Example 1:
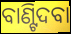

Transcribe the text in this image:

ବାଣ୍ଟିଦବା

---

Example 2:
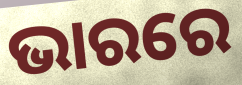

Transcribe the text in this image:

ଭାରରେ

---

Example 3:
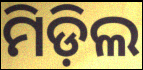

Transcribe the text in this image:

ମିଡ଼ିଲ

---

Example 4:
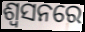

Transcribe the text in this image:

ଶ୍ଵସନରେ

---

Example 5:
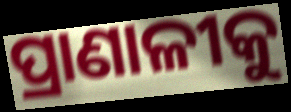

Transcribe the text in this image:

ପ୍ରାଣାଳୀକୁ